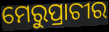
ମେରୁପ୍ରାଚୀର